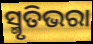
ସ୍ମୃତିଭରା